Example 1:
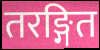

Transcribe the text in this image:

तरङ्गित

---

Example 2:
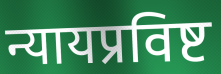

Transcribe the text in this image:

न्यायप्रविष्ट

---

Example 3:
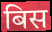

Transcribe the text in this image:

बिस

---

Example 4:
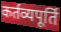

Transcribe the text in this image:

कर्तव्यपूर्ति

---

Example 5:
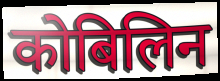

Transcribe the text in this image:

कोबिलिन